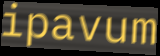
ipavum